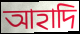
আহাদি